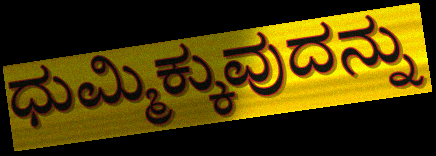
ಧುಮ್ಮಿಕ್ಕುವುದನ್ನು